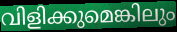
വിളിക്കുമെങ്കിലും